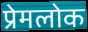
प्रेमलोक